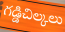
గడ్డిచిల్కలు